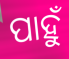
ପାହୁଁ